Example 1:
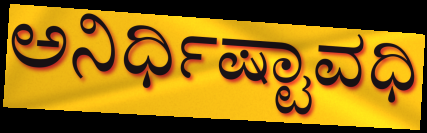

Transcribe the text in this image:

ಅನಿರ್ಧಿಷ್ಟಾವಧಿ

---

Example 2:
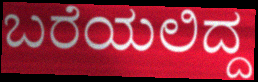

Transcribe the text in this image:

ಬರೆಯಲಿದ್ದ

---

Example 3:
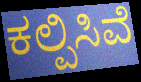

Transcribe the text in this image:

ಕಲ್ಪಿಸಿವೆ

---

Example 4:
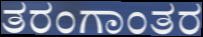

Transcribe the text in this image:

ತರಂಗಾಂತರ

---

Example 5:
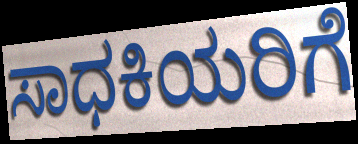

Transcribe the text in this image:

ಸಾಧಕಿಯರಿಗೆ